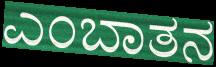
ಎಂಬಾತನ